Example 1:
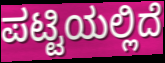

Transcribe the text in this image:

ಪಟ್ಟಿಯಲ್ಲಿದೆ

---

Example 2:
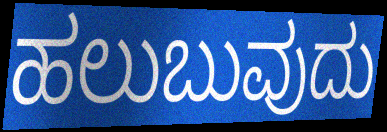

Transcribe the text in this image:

ಹಲುಬುವುದು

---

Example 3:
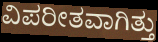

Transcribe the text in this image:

ವಿಪರೀತವಾಗಿತ್ತು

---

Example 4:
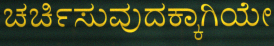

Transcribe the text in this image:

ಚರ್ಚಿಸುವುದಕ್ಕಾಗಿಯೇ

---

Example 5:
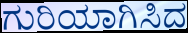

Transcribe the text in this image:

ಗುರಿಯಾಗಿಸಿದ